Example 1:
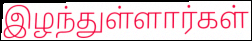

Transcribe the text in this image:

இழந்துள்ளார்கள்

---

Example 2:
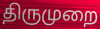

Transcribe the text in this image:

திருமுறை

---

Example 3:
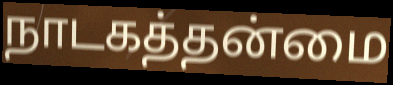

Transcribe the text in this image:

நாடகத்தன்மை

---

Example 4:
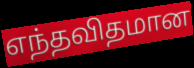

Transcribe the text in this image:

எந்தவிதமான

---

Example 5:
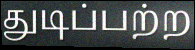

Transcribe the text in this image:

துடிப்பற்ற